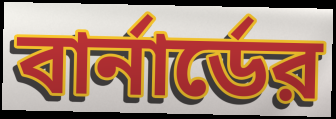
বার্নার্ডের